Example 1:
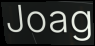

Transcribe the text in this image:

Joag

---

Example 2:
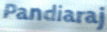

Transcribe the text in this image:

Pandiaraj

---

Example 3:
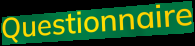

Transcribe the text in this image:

Questionnaire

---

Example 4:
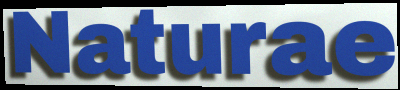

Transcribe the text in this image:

Naturae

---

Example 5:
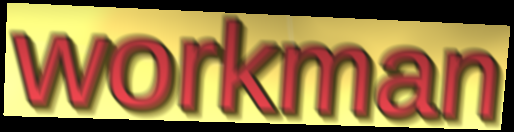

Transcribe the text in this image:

workman